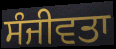
ਸੰਜੀਵਤਾ